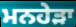
ਮਨਹੇੜਾ